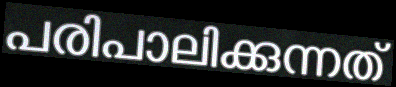
പരിപാലിക്കുന്നത്